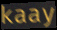
kaay